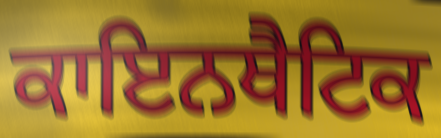
ਕਾਇਨਥੈਟਿਕ